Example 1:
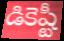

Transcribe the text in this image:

డికెష్టీ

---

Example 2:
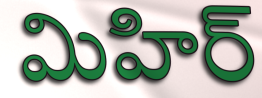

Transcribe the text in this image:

మిహిర్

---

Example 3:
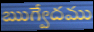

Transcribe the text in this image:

ఋగ్వేదము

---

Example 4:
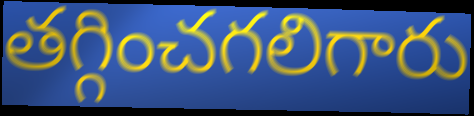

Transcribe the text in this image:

తగ్గించగలిగారు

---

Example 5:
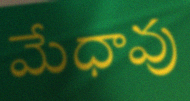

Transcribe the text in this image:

మేధావు